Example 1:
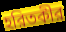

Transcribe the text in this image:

হরিতকীর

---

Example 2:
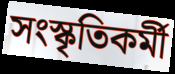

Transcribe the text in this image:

সংস্কৃতিকর্মী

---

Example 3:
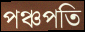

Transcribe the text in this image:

পঞ্চপতি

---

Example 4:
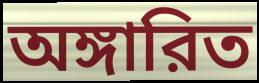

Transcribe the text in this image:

অঙ্গারিত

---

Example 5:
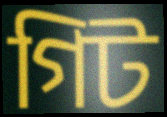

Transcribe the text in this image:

গিট